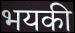
भयकी